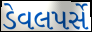
ડેવલપર્સે